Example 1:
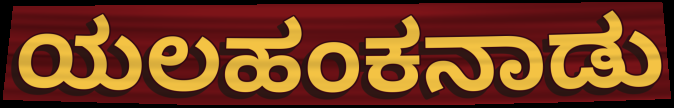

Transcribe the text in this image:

ಯಲಹಂಕನಾಡು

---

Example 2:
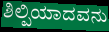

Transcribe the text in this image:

ಶಿಲ್ಪಿಯಾದವನು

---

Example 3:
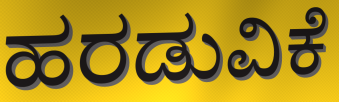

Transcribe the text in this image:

ಹರಡುವಿಕೆ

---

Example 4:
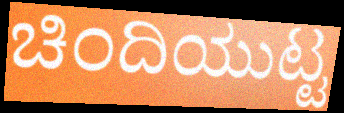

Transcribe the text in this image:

ಚಿಂದಿಯುಟ್ಟ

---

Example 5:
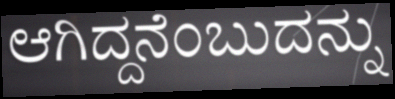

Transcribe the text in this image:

ಆಗಿದ್ದನೆಂಬುದನ್ನು